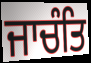
ਜਾਚੰਤਿ